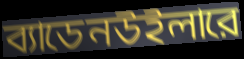
ব্যাডেনউইলারে